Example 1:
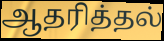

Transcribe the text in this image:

ஆதரித்தல்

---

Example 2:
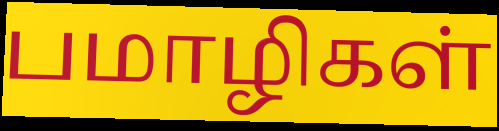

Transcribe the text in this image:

பமாழிகள்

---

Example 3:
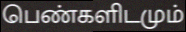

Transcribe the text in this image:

பெண்களிடமும்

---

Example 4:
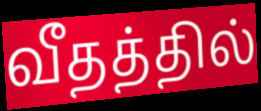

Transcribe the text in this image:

வீதத்தில்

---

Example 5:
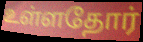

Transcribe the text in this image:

உள்ளதோர்